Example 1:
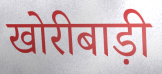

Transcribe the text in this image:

खोरीबाड़ी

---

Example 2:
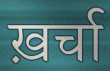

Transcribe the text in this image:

ख़र्चा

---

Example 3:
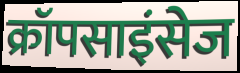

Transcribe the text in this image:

क्रॉपसाइंसेज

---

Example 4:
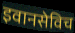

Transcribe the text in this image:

इवानसेविच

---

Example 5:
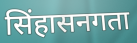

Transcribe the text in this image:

सिंहासनगता